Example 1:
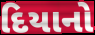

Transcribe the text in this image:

દિયાનો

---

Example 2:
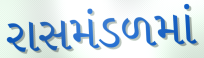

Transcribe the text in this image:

રાસમંડળમાં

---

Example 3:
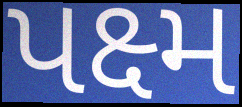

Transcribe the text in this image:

પક્ષ્મ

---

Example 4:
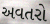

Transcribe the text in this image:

અવતરો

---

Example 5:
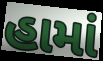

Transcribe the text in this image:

હામાં